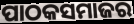
ପାଠକସମାଜର